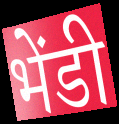
भेंडी